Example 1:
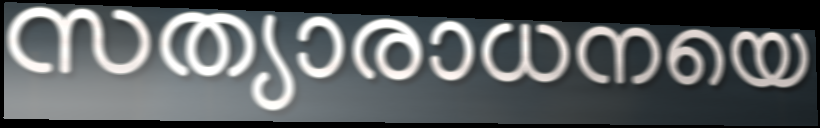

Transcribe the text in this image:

സത്യാരാധനയെ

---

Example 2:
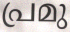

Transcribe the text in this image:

പ്രമു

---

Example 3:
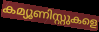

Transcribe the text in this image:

കമ്യൂണിസ്റ്റുകളെ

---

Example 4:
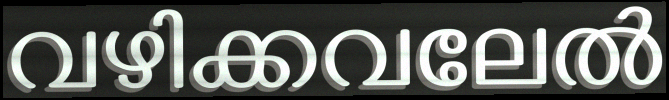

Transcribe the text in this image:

വഴിക്കവലേൽ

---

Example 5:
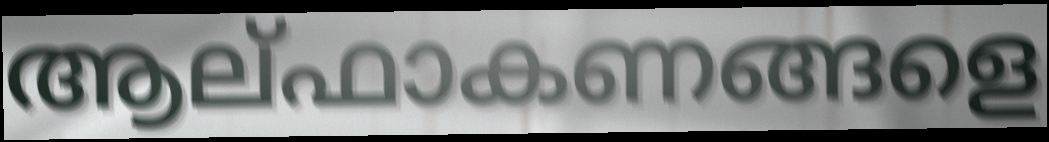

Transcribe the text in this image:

ആല്ഫാകണങ്ങളെ